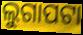
ଲୁଗାପଟା